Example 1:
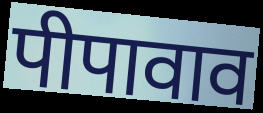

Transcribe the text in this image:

पीपावाव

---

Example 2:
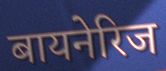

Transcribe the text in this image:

बायनेरिज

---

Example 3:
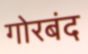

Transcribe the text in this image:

गोरबंद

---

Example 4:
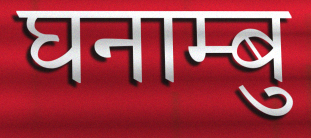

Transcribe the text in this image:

घनाम्बु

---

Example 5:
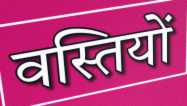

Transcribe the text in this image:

वस्तियों